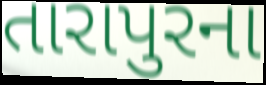
તારાપુરના